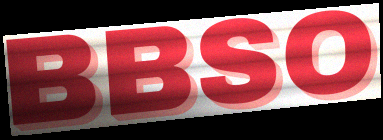
BBSO